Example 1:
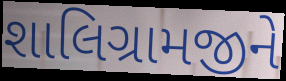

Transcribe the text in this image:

શાલિગ્રામજીને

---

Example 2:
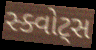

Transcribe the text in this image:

સ્ક્વોટ્સ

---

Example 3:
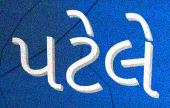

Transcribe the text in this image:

પટેલે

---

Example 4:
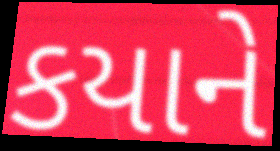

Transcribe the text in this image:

કયાને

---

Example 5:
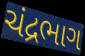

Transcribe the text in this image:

ચંદ્રભાગ